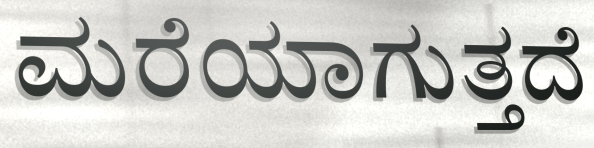
ಮರೆಯಾಗುತ್ತದೆ